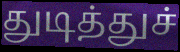
துடித்துச்